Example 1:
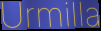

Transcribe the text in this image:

Urmilla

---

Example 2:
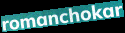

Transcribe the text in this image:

romanchokar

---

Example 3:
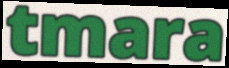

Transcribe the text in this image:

tmara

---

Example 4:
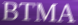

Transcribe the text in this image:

BTMA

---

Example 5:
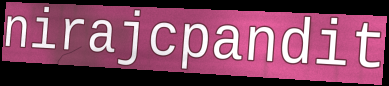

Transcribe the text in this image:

nirajcpandit